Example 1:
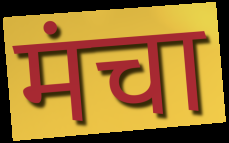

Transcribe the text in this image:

मंचा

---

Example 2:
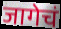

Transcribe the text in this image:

जागेचं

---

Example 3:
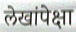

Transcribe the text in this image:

लेखांपेक्षा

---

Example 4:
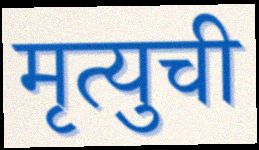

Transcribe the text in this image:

मृत्युची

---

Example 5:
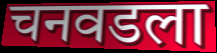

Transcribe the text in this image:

चनवडला